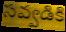
సవ్వడికి